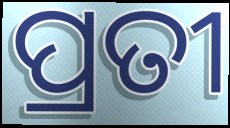
ପ୍ରତୀ